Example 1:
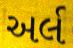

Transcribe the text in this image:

અર્લ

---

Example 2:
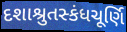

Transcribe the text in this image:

દશાશ્રુતસ્કંધચૂર્ણિ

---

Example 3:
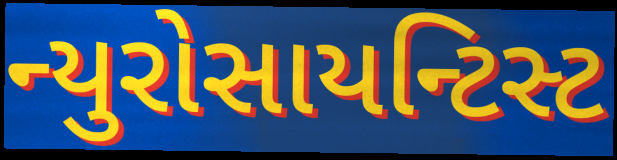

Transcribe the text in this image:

ન્યુરોસાયન્ટિસ્ટ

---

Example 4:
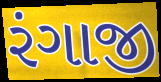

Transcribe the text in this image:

રંગાજી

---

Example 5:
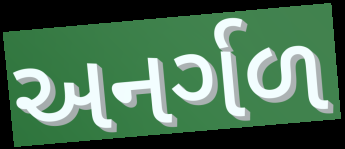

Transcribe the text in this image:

અનર્ગળ